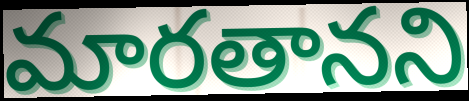
మారతానని